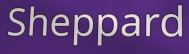
Sheppard